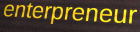
enterpreneur